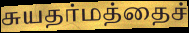
சுயதர்மத்தைச்